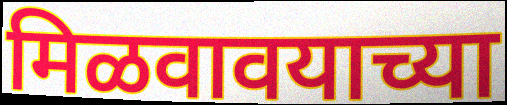
मिळवावयाच्या